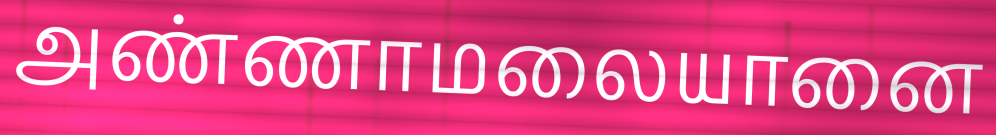
அண்ணாமலையானை